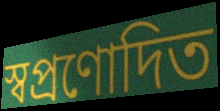
স্বপ্রণোদিত